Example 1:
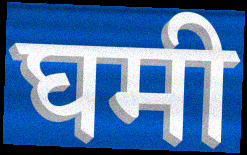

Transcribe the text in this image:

घमी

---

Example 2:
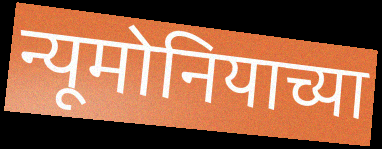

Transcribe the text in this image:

न्यूमोनियाच्या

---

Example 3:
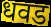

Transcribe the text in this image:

धवड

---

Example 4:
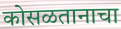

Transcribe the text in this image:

कोसळतानाचा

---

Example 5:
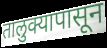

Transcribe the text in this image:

तालुक्यापासून